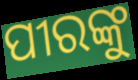
ପୀରଙ୍କୁ